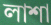
লাশা